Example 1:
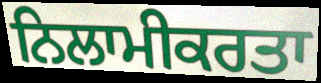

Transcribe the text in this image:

ਨਿਲਾਮੀਕਰਤਾ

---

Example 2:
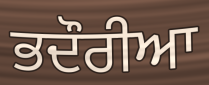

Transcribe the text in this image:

ਭਦੌਰੀਆ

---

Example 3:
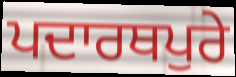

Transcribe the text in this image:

ਪਦਾਰਥਪੁਰੇ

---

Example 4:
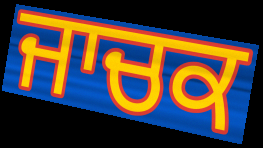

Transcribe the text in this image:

ਜਾਚਕ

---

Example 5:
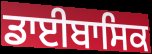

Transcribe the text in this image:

ਡਾਈਬਾਸਿਕ